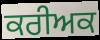
ਕਰੀਅਕ